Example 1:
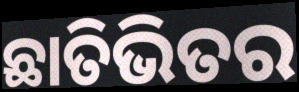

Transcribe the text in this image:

ଛାତିଭିତର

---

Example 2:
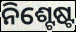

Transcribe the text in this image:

ନିଶ୍ଟେଷ୍ଟ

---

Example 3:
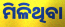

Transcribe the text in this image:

ମିଳିଥିବା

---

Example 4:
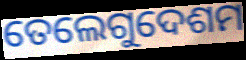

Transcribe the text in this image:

ତେଲେଗୁଦେଶମ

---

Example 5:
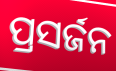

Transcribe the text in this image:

ପ୍ରସର୍ଜନ